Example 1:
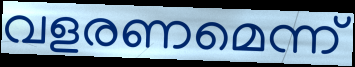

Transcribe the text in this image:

വളരണമെന്ന്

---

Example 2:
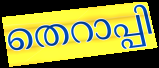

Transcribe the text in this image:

തെറാപ്പി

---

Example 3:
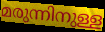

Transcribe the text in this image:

മരുന്നിനുള്ള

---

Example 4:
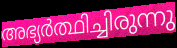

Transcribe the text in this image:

അഭ്യർത്ഥിച്ചിരുന്നു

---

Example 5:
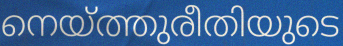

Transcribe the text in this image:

നെയ്ത്തുരീതിയുടെ